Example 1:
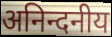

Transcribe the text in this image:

अनिन्दनीय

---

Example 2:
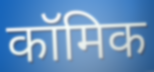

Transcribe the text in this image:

कॉमिक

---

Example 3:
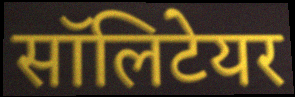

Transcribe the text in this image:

सॉलिटेयर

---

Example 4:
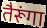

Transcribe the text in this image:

तैरूंगा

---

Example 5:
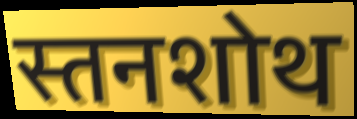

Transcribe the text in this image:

स्तनशोथ